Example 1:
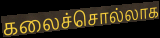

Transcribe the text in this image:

கலைச்சொல்லாக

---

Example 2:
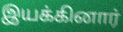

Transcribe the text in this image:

இயக்கினார்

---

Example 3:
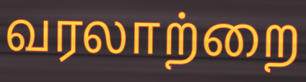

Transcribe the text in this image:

வரலாற்றை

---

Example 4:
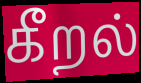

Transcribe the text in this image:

கீறல்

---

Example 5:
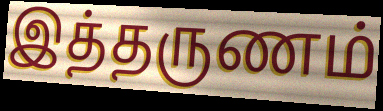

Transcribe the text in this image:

இத்தருணம்